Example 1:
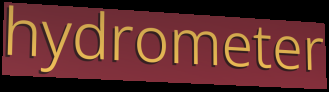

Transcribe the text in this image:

hydrometer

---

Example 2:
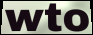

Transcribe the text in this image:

wto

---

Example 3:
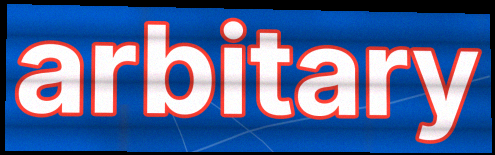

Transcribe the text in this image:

arbitary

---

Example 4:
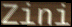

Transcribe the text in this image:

Zini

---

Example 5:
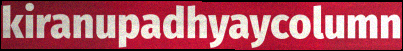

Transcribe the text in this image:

kiranupadhyaycolumn